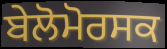
ਬੇਲੋਮੋਰਸਕ